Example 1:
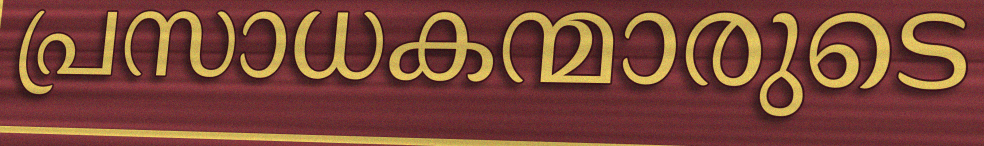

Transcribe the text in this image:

പ്രസാധകന്മാരുടെ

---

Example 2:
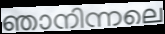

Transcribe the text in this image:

ഞാനിന്നലെ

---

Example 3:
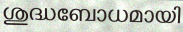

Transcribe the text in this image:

ശുദ്ധബോധമായി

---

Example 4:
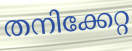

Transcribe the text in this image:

തനിക്കേറ്റ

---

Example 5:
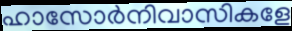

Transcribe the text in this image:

ഹാസോർനിവാസികളേ